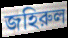
জহিরুল